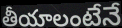
తీయాలంటేనే